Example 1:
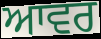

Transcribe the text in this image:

ਆਵਰ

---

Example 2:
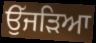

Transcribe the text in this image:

ਉੱਜੜਿਆ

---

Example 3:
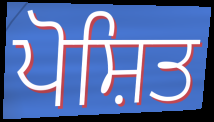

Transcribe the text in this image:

ਪੋਸ਼ਿਤ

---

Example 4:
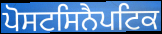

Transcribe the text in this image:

ਪੋਸਟਸਿਨੈਪਟਿਕ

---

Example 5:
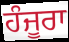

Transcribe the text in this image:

ਹੰਜੂਰਾ